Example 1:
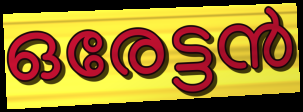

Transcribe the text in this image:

ഒരേട്ടൻ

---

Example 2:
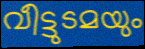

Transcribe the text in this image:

വീട്ടുടമയും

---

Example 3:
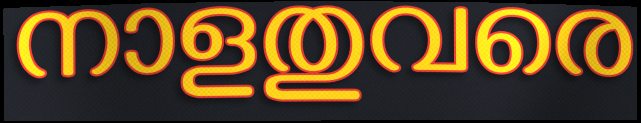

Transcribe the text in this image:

നാളതുവരെ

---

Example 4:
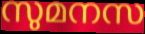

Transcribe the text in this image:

സുമനസ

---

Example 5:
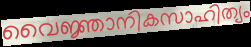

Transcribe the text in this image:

വൈജ്ഞാനികസാഹിത്യം